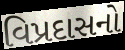
વિપ્રદાસનો